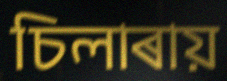
চিলাৰায়